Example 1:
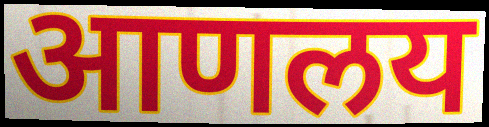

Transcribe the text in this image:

आणलय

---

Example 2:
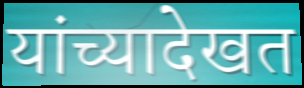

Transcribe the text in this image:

यांच्यादेखत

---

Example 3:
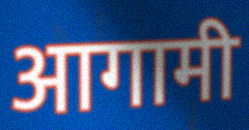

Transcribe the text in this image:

आगामी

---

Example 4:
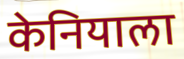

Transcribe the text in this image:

केनियाला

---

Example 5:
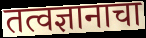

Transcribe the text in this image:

तत्वज्ञानाचा